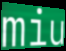
miu